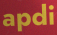
apdi